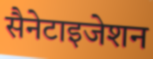
सैनेटाइजेशन